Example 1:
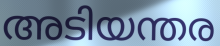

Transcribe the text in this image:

അടിയന്തര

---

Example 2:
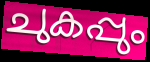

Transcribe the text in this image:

ചുകപ്പും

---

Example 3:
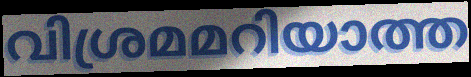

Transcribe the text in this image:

വിശ്രമമറിയാത്ത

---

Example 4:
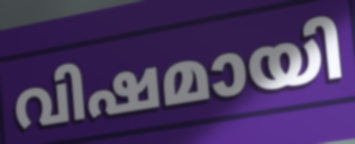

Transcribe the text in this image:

വിഷമായി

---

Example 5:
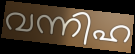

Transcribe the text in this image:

വന്നിഹ